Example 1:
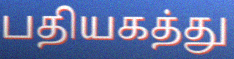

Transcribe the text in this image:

பதியகத்து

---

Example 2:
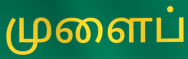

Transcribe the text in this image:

முளைப்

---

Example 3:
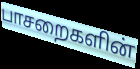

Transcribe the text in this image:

பாசறைகளின்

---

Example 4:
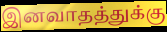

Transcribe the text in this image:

இனவாதத்துக்கு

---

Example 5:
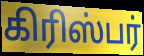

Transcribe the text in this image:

கிரிஸ்பர்